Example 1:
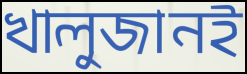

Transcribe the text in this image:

খালুজানই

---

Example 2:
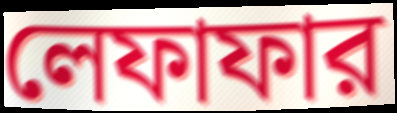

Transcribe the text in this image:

লেফাফার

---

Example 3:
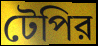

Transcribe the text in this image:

টেপির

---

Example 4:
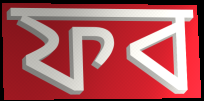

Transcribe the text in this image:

ফব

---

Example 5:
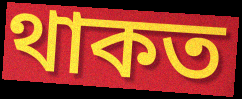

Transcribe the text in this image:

থাকত